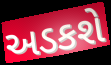
અડકશે